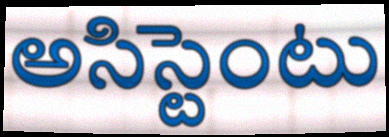
అసిస్టెంటు